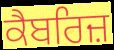
ਕੈਬਰਿਜ਼